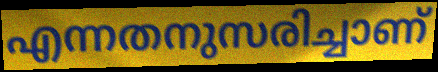
എന്നതനുസരിച്ചാണ്